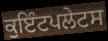
ਕੁਇੰਟਪਲੇਟਸ